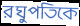
রঘুপতিকে